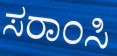
ಸರಾಂಸಿ